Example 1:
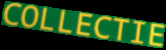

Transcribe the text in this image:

COLLECTIE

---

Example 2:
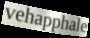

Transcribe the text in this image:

vehapphale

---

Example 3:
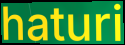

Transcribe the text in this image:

haturi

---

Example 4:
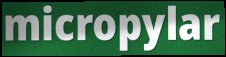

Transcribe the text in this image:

micropylar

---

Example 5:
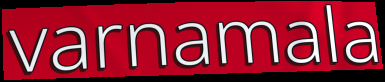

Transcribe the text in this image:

varnamala